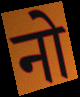
नो